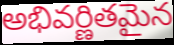
అభివర్ణితమైన